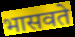
भासवते